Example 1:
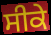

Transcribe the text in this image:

ਸੀਕੇ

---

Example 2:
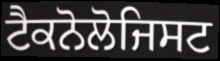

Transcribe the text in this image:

ਟੈਕਨੋਲੋਜਿਸਟ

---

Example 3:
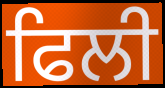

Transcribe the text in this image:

ਫਿਲੀ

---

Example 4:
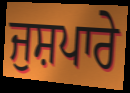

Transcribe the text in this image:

ਜੁਸ਼ਪਾਰੇ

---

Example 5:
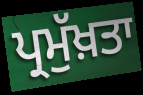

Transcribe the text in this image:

ਪ੍ਰਮੁੱਖ਼ਤਾ